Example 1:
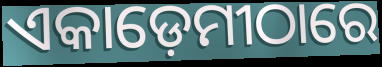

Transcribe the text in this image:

ଏକାଡ଼େମୀଠାରେ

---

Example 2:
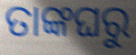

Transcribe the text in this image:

ତାଙ୍କଘରୁ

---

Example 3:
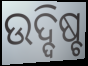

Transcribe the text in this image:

ଉଦ୍ଦିଷ୍ଚ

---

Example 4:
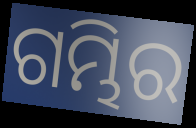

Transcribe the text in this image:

ଗମ୍ଭିର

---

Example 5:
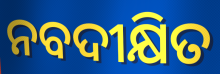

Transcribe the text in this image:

ନବଦୀକ୍ଷିତ